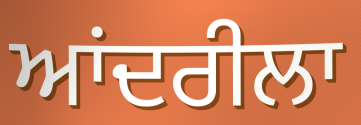
ਆਂਦਰੀਲਾ